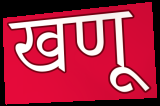
खणू